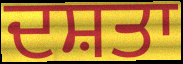
ਦਸ਼ਤਾ